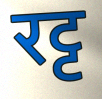
रट्ट